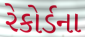
રેકોર્ડના